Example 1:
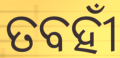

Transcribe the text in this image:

ତବହୀଁ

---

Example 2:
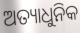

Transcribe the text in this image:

ଅତ୍ୟାଧୁନିକ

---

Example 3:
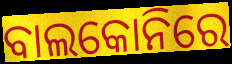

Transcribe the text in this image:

ବାଲକୋନିରେ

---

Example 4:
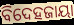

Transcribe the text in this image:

ବିଦେହଜାୟା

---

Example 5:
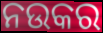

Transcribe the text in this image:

ନଉକର